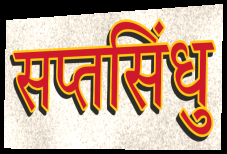
सप्तसिंधु